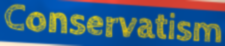
Conservatism